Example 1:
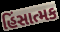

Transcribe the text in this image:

હિંસાત્મક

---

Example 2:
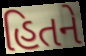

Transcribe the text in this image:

હિતને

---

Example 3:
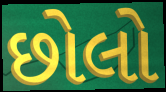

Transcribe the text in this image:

છોલો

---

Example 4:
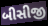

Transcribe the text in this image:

બીસીજી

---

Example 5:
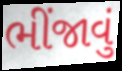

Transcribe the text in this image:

ભીંજાવું